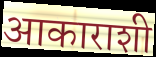
आकाराशी